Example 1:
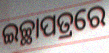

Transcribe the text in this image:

ଇଚ୍ଛାପତ୍ରରେ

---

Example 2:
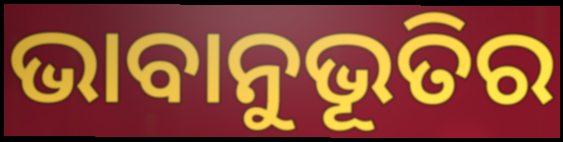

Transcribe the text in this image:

ଭାବାନୁଭୂତିର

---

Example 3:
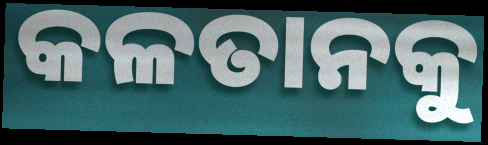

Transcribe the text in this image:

କଳତାନକୁ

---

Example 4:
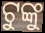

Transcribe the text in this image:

ଟୁଙ୍କୁ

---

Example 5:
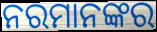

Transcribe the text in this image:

ନରମାନଙ୍କର